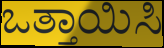
ಒತ್ತಾಯಿಸಿ